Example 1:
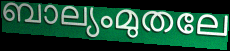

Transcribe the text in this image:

ബാല്യംമുതലേ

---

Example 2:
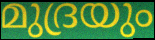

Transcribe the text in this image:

മുദ്രയും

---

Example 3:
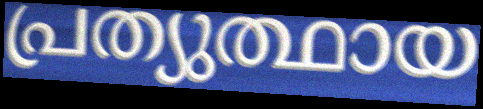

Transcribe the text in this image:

പ്രത്യുത്ഥായ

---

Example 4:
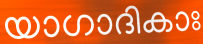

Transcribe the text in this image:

യാഗാദികാഃ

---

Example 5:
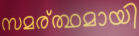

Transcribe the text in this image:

സമര്ത്ഥമായി